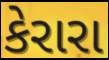
કેરારા